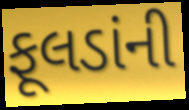
ફૂલડાંની